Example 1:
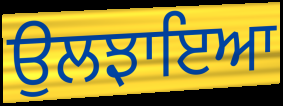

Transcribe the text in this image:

ਉਲਝਾਇਆ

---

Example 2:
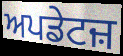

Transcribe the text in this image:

ਅਪਡੇਟਜ਼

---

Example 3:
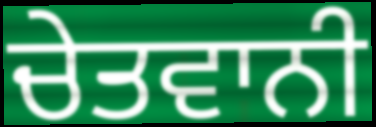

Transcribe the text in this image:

ਚੇਤਵਾਨੀ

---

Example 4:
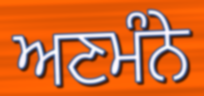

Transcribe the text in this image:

ਅਣਮੰਨੇ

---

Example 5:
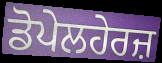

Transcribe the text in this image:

ਡੋਪੇਲਹੇਰਜ਼